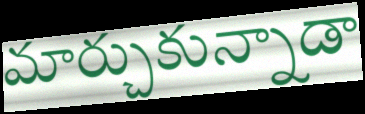
మార్చుకున్నాడా